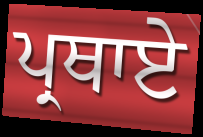
ਪ੍ਰਥਾਏ